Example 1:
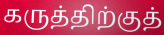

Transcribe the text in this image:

கருத்திற்குத்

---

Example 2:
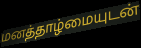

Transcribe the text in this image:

மனத்தாழ்மையுடன்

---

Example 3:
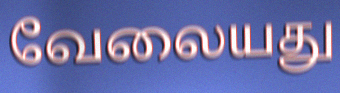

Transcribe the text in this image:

வேலையது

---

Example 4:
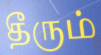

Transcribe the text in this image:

தீரும்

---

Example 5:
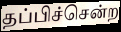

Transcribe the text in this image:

தப்பிச்சென்ற